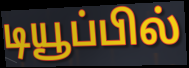
டியூப்பில்